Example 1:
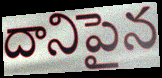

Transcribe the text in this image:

దానిపైన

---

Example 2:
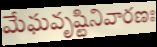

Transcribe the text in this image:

మేఘవృష్టినివారణః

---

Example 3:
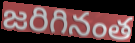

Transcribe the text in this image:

జరిగినంత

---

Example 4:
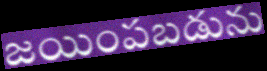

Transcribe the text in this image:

జయింపబడును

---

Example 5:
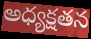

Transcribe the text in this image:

అధ్యక్షతన